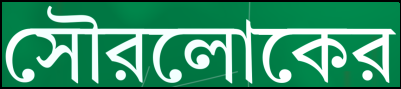
সৌরলোকের